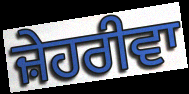
ਜ਼ੇਹਰੀਵਾ